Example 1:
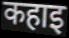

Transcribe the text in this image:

कहाइ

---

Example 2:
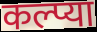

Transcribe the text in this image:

कल्प्या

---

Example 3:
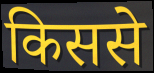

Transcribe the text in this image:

किससे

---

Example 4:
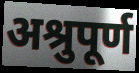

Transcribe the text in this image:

अश्रुपूर्ण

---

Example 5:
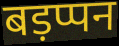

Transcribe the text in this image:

बड़प्पन